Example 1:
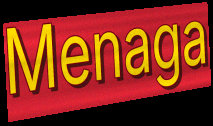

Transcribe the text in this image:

Menaga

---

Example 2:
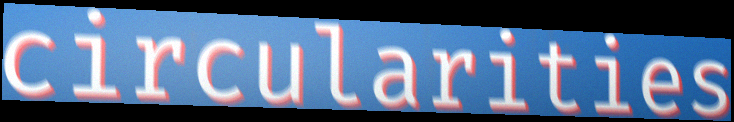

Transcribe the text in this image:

circularities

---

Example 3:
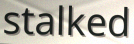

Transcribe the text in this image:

stalked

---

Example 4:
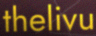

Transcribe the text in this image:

thelivu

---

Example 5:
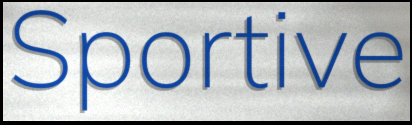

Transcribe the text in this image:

Sportive